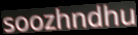
soozhndhu